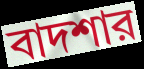
বাদশার